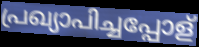
പ്രഖ്യാപിച്ചപ്പോള്